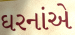
ઘરનાંએ